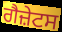
ਗੈਜ਼ੇਟਸ